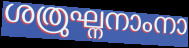
ശത്രുഘ്നനാംനാ